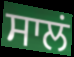
ਸਾਲਂ